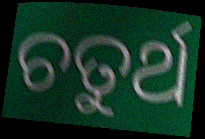
ଚତୁର୍ଥ